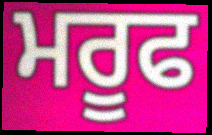
ਮਰੂਫ